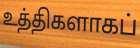
உத்திகளாகப்